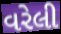
વરેલી